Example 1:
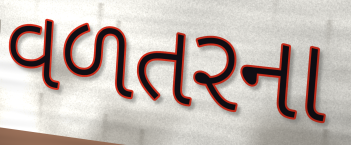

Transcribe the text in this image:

વળતરના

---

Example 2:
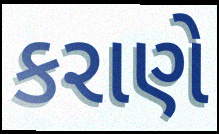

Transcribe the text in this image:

કરાણે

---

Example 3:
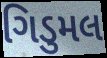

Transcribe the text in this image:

ગિડુમલ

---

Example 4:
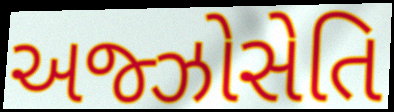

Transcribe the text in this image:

અજ્ઝોસેતિ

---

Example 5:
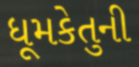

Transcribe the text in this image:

ધૂમકેતુની